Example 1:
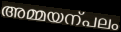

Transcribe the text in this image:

അമ്മയന്പലം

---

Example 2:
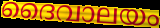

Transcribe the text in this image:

ദൈവാലയം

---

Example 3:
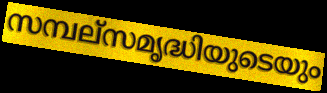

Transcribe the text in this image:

സമ്പല്സമൃദ്ധിയുടെയും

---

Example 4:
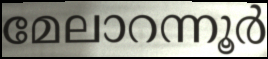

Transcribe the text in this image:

മേലാറന്നൂർ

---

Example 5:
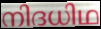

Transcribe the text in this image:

നിദധിഥ